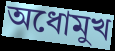
অধোমুখ